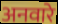
अनवारे